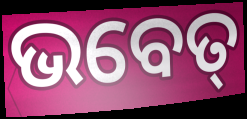
ଭବେତ୍